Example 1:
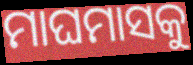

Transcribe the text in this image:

ମାଘମାସକୁ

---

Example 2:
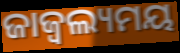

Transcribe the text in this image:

ଜାଜ୍ୱଲ୍ୟମୟ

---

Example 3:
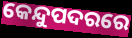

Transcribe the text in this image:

କେନ୍ଦୁପଦରରେ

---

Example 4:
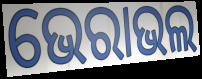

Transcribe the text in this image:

ଭେରାଭଲ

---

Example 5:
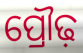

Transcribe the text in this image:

ପ୍ରୌଢ଼